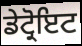
ਡੇਟ੍ਰੋਇਟ